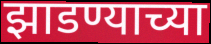
झाडण्याच्या